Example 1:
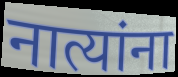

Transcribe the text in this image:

नात्यांना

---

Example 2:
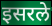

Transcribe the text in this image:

इसरले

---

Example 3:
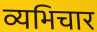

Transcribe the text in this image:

व्यभिचार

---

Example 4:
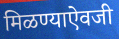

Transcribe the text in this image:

मिळण्याऐवजी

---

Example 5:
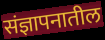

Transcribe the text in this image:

संज्ञापनातील